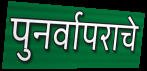
पुनर्वापराचे